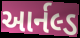
આર્નલ્ડ